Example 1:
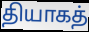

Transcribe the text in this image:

தியாகத்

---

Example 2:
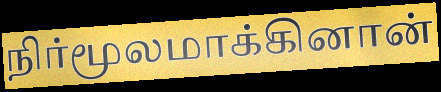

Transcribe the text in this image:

நிர்மூலமாக்கினான்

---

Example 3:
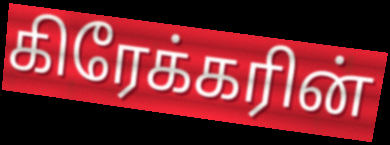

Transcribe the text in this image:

கிரேக்கரின்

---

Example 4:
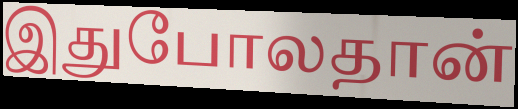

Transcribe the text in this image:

இதுபோலதான்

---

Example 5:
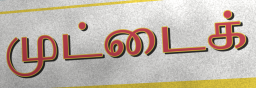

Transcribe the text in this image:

முட்டைக்